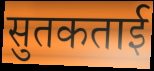
सुतकताई